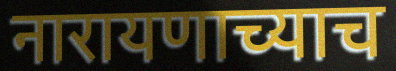
नारायणाच्याच